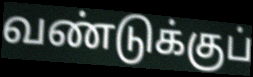
வண்டுக்குப்